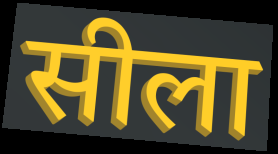
सीला